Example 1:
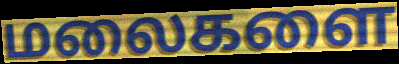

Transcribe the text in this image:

மலைகளை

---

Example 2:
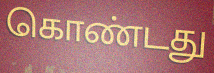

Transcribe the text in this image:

கொண்டது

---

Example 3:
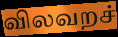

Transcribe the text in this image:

விலவறச்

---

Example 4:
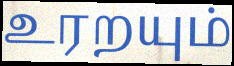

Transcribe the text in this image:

உரறயும்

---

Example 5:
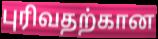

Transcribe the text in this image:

புரிவதற்கான